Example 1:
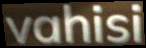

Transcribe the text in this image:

vahisi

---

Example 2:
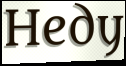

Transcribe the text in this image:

Hedy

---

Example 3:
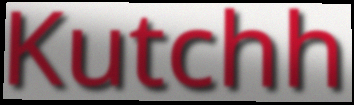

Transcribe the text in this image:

Kutchh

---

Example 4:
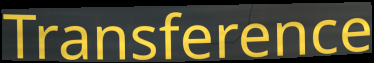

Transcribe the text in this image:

Transference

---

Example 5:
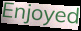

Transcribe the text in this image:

Enjoyed